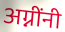
अग्नींनी